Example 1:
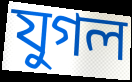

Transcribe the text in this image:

যুগল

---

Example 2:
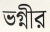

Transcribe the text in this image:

ভগ্নীর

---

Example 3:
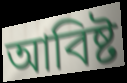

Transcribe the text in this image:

আবিষ্ট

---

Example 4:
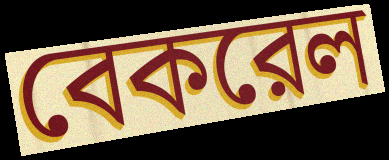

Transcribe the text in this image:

বেকরেল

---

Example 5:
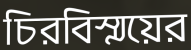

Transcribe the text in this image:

চিরবিস্ময়ের